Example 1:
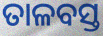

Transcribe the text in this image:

ତାଳବସ୍ତ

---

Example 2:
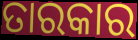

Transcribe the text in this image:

ତାରକାର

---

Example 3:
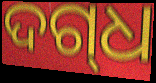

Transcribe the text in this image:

ଦଗ୍‌ଧ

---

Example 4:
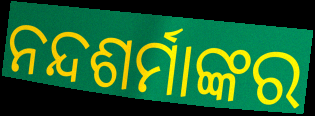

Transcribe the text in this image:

ନନ୍ଦଶର୍ମାଙ୍କର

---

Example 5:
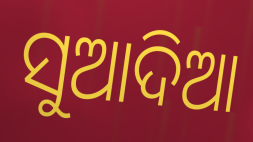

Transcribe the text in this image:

ସୁଆଦିଆ